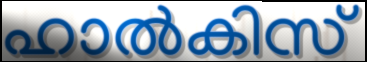
ഹാൽകിസ്